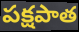
పక్షపాత